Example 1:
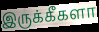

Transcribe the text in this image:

இருக்கீகளா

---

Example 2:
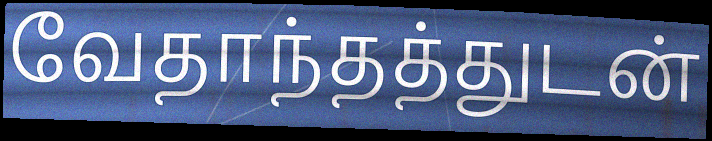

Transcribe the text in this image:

வேதாந்தத்துடன்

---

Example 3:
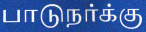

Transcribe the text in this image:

பாடுநர்க்கு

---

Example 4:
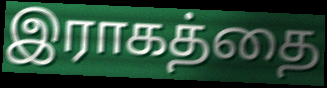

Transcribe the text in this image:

இராகத்தை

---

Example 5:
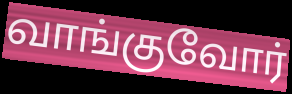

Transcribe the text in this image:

வாங்குவோர்